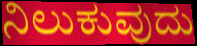
ನಿಲುಕುವುದು